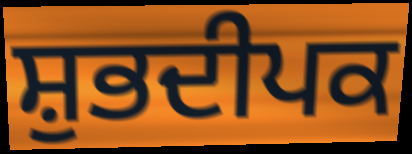
ਸ਼ੁਭਦੀਪਕ